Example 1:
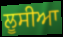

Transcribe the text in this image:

ਲੂਸੀਆ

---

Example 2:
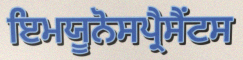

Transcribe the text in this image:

ਇਮਯੂਨੋਸਪ੍ਰੈਸੈਂਟਸ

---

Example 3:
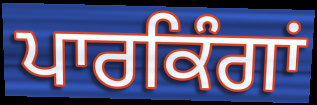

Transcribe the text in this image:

ਪਾਰਕਿੰਗਾਂ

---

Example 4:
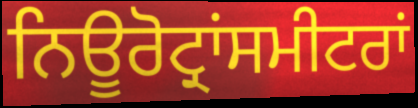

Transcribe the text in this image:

ਨਿਊਰੋਟ੍ਰਾਂਸਮੀਟਰਾਂ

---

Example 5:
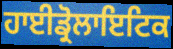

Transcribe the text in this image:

ਹਾਈਡ੍ਰੋਲਾਇਟਿਕ